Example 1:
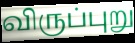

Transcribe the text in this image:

விருப்புறு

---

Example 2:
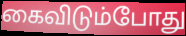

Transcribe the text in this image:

கைவிடும்போது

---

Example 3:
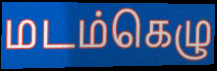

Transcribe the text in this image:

மடம்கெழு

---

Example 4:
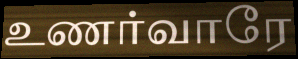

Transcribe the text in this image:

உணர்வாரே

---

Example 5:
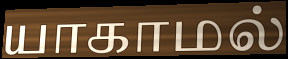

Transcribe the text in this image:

யாகாமல்